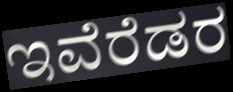
ಇವೆರೆಡರ